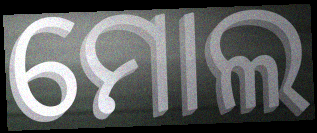
ମୋଲ